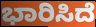
ಭಾರಿಸಿದೆ